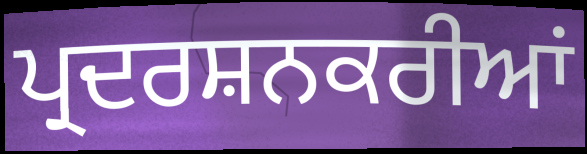
ਪ੍ਰਦਰਸ਼ਨਕਰੀਆਂ